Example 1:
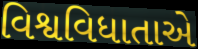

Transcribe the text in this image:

વિશ્વવિધાતાએ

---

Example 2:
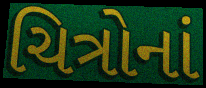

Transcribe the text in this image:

ચિત્રોનાં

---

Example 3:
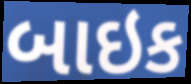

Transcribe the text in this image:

બાઇક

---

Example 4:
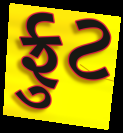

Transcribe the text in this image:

ફ્રુટ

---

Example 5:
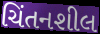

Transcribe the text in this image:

ચિંતનશીલ